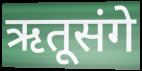
ऋतूसंगे